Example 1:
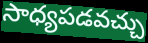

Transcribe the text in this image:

సాధ్యపడవచ్చు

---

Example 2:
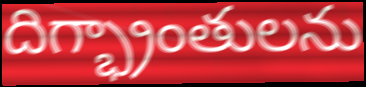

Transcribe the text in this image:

దిగ్భ్రాంతులను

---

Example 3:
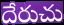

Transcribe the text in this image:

దేరుచు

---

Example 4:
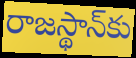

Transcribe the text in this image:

రాజస్థాన్‌కు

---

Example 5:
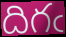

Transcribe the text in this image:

దిగఁ